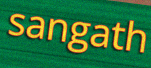
sangath